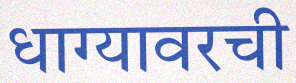
धाग्यावरची